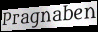
Pragnaben